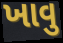
ખાવુ